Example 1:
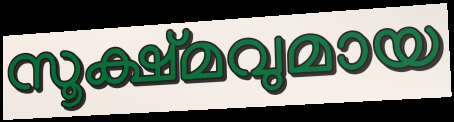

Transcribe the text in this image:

സൂക്ഷ്മവുമായ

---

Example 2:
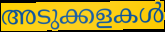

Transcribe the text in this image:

അടുക്കളകൾ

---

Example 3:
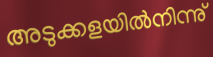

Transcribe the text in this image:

അടുക്കളയിൽനിന്നു്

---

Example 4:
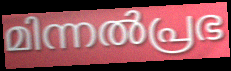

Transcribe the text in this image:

മിന്നൽപ്രഭ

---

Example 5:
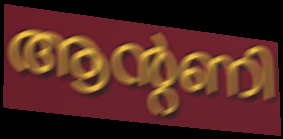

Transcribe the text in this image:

ആന്റണി